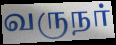
வருநர்